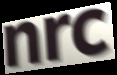
nrc